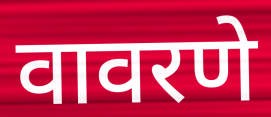
वावरणे